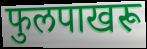
फुलपाखरू